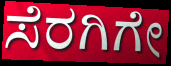
ಸೆರಗಿಗೇ